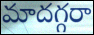
మాదగ్గరా